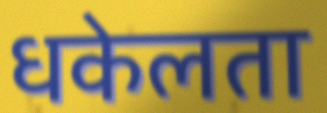
धकेलता